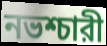
নভশ্চারী